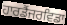
ਹਾਰਡੈਂਜਰਵਿਡਾ